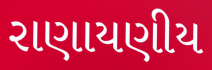
રાણાયણીય